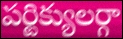
పర్టిక్యులర్గా